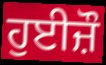
ਹੁਈਜ਼ੌ